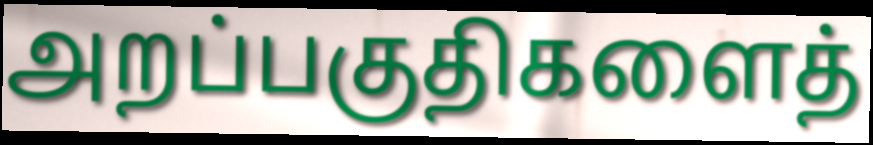
அறப்பகுதிகளைத்